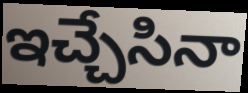
ఇచ్చేసినా